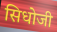
सिधोजी